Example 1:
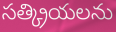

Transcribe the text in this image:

సత్క్రియలను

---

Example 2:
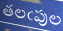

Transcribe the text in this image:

తలఁపుల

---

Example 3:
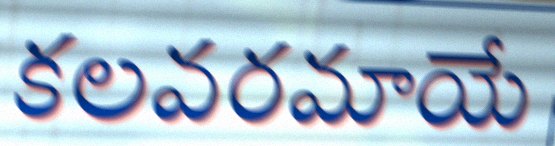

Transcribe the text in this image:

కలవరమాయే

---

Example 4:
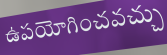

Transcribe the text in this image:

ఉపయోగించవచ్చు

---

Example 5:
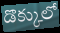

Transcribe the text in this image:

డొక్కులో